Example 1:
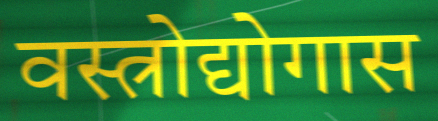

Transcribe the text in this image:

वस्त्रोद्योगास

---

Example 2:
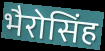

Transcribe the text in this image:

भैरोसिंह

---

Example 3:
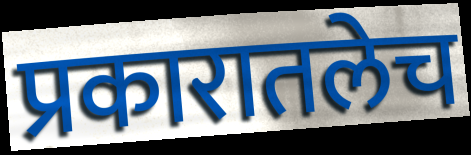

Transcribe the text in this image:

प्रकारातलेच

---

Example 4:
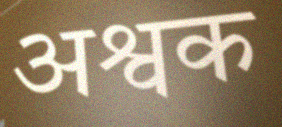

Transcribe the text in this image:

अश्वक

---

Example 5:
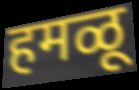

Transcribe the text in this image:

हमळू